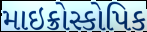
માઇક્રોસ્કોપિક